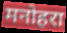
मनोहरा